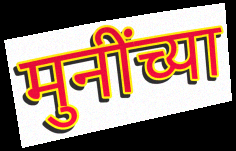
मुनींच्या